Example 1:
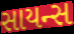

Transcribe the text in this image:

સાયન્સ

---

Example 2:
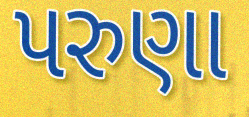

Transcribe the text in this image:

પરુણા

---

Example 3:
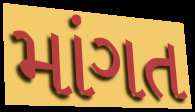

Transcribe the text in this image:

માંગત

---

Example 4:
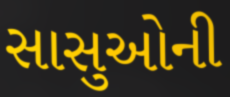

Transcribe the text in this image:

સાસુઓની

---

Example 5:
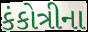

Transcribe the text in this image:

કંકોત્રીના